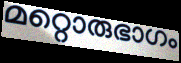
മറ്റൊരുഭാഗം